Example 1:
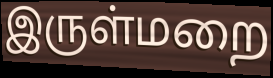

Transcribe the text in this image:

இருள்மறை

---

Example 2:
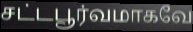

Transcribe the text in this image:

சட்டபூர்வமாகவே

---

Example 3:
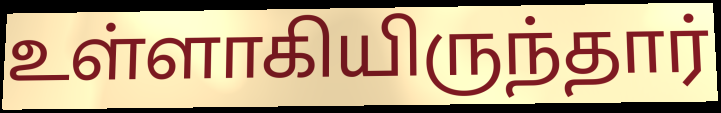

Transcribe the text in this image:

உள்ளாகியிருந்தார்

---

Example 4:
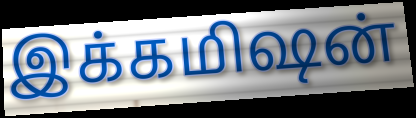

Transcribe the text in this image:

இக்கமிஷன்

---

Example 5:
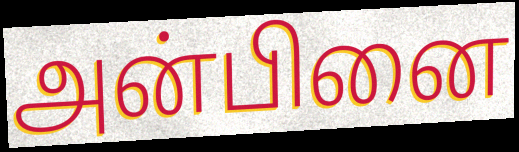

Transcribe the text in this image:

அன்பினை